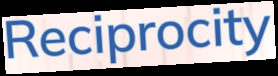
Reciprocity